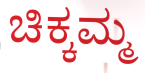
ಚಿಕ್ಕಮ್ಮ